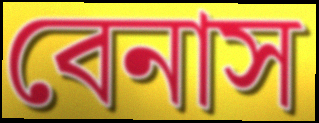
বেনাস